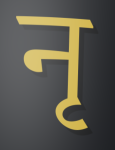
नृ